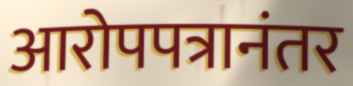
आरोपपत्रानंतर